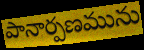
పానార్పణమును